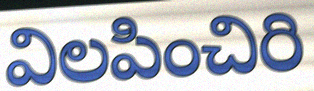
విలపించిరి